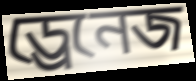
ড্রেনেজ